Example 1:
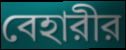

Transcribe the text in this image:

বেহারীর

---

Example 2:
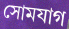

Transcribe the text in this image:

সোমযাগ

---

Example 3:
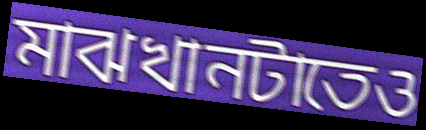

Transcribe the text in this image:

মাঝখানটাতেও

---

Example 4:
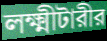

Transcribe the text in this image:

লক্ষ্মীটারীর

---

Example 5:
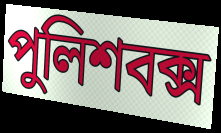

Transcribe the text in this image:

পুলিশবক্স